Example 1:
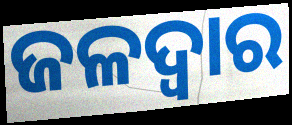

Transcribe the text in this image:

ଜଳଦ୍ୱାର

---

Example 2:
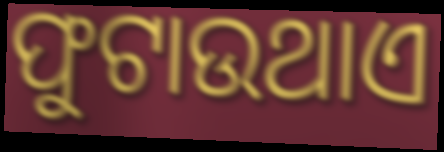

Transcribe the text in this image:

ଫୁଟାଉଥାଏ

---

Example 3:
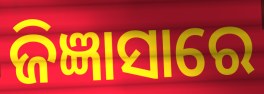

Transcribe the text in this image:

ଜିଜ୍ଞାସାରେ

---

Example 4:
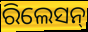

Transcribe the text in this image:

ରିଲେସନ୍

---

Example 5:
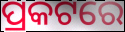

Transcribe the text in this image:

ପ୍ରକଟରେ